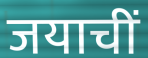
जयाचीं